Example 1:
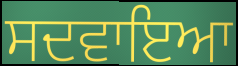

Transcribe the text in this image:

ਸਦਵਾਇਆ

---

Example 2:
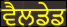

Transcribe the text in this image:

ਵੈਲਡੇਡ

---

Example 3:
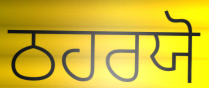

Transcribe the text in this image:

ਠਹਰਯੋ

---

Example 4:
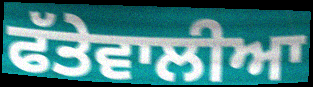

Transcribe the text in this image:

ਫੱਤੇਵਾਲੀਆ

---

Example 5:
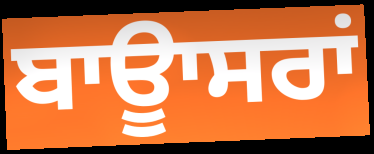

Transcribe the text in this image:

ਬਾਊਾਸਰਾਂ